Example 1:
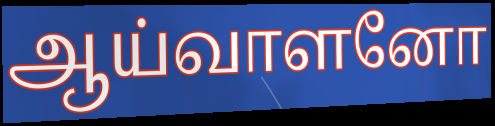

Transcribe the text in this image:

ஆய்வாளனோ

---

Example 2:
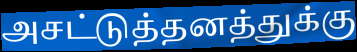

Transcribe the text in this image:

அசட்டுத்தனத்துக்கு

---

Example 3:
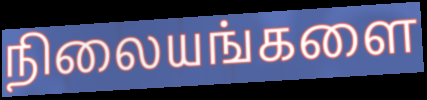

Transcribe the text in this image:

நிலையங்களை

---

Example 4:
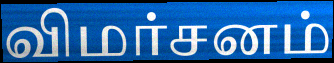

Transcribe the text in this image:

விமர்சனம்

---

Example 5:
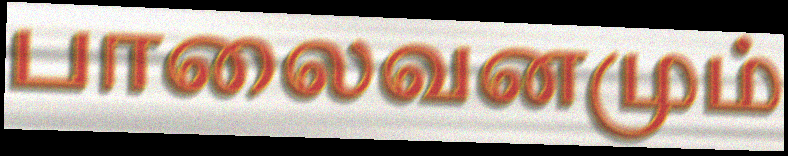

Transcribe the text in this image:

பாலைவனமும்